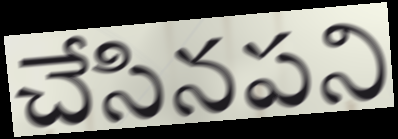
చేసినపని